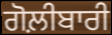
ਗੋਲ਼ੀਬਾਰੀ